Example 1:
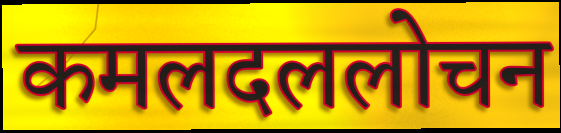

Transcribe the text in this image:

कमलदललोचन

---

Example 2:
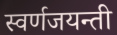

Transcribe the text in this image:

स्वर्णजयन्ती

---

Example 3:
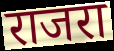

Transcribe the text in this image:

राजरा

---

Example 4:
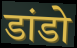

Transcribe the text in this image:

डांडो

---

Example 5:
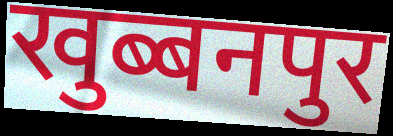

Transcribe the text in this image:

खुब्बनपुर